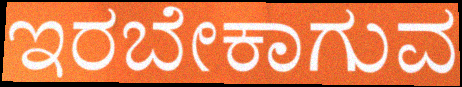
ಇರಬೇಕಾಗುವ